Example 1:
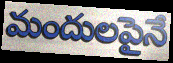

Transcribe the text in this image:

మందులపైనే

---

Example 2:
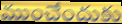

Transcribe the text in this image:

ముంచేందుకు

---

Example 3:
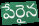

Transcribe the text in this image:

పేరైన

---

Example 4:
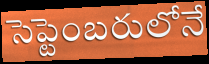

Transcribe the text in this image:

సెప్టెంబరులోనే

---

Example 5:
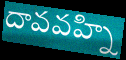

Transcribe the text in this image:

దావవహ్ని